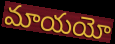
మాయయో